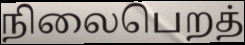
நிலைபெறத்